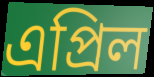
এপ্ৰিল